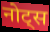
नोट्स